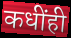
कधींही